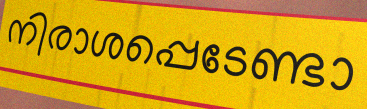
നിരാശപ്പെടേണ്ടാ